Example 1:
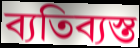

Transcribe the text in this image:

ব্যতিব্যস্ত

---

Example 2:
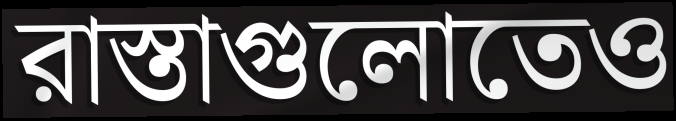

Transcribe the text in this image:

রাস্তাগুলোতেও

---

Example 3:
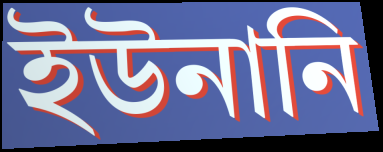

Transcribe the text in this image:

ইউনানি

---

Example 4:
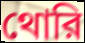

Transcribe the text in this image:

থোরি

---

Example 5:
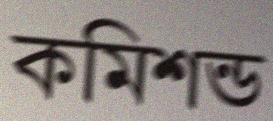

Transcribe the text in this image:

কমিশন্ড